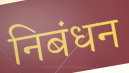
निबंधन